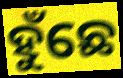
ହୁଁଛେ